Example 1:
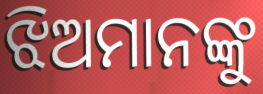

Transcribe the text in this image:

ଝିଅମାନଙ୍କୁ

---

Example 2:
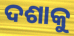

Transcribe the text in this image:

ଦଶାକୁ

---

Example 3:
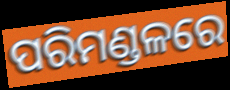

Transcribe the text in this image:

ପରିମଣ୍ଡଳରେ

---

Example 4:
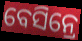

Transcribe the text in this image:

ବେସିନ୍ରେ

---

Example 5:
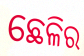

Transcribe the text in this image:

ଛେଳିର